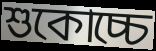
শুকোচ্চে